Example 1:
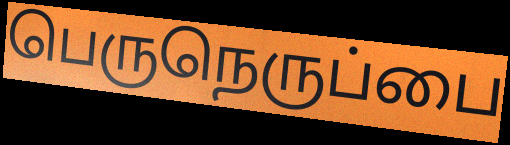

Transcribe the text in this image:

பெருநெருப்பை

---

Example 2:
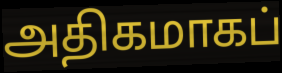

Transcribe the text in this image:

அதிகமாகப்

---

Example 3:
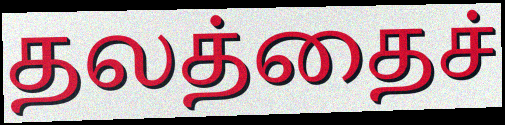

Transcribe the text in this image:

தலத்தைச்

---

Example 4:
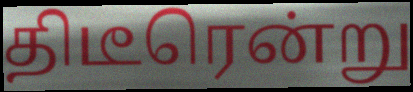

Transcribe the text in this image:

திடீரென்று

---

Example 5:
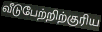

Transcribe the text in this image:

வீடுபேற்றிற்குரிய